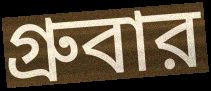
গ্রুবার